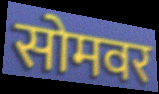
सोमवर